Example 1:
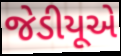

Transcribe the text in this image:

જેડીયૂએ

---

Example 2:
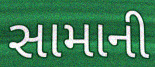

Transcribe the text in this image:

સામાની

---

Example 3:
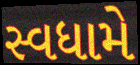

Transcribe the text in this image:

સ્વધામે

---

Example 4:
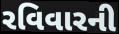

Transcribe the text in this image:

રવિવારની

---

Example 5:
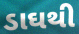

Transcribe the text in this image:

ડાઘથી